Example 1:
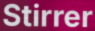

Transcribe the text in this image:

Stirrer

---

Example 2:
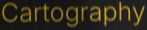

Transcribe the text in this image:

Cartography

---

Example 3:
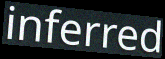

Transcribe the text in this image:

inferred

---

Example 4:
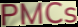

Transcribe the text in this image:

PMCs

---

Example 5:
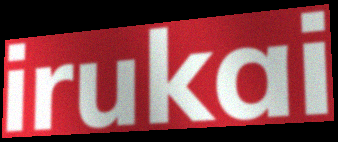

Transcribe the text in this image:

irukai